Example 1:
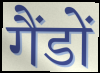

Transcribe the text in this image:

गैंडों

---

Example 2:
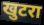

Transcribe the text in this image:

खुटरा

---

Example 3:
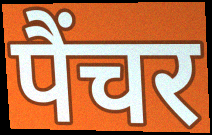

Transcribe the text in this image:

पैंचर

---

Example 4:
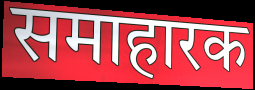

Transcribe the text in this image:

समाहारक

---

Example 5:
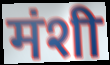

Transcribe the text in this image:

मंशी